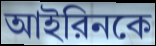
আইরিনকে